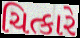
ચિત્કારે